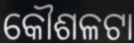
କୌଶଳଟା